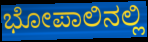
ಭೋಪಾಲಿನಲ್ಲಿ